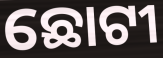
ଛୋଟୀ